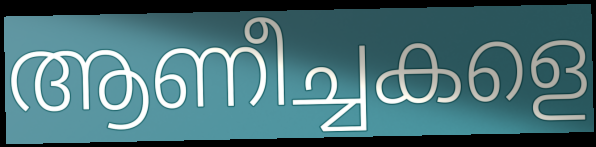
ആണീച്ചകളെ